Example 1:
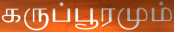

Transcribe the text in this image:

கருப்பூரமும்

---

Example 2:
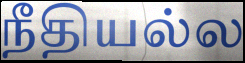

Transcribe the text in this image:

நீதியல்ல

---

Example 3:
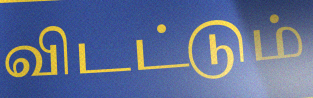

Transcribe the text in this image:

விடட்டும்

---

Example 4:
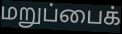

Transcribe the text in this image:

மறுப்பைக்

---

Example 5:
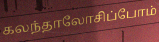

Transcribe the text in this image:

கலந்தாலோசிப்போம்